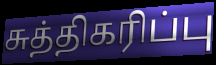
சுத்திகரிப்பு